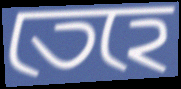
তেহে